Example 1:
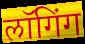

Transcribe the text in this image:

लॉगिंग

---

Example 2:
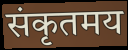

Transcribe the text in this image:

संकृतमय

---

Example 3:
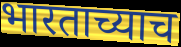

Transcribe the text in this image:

भारताच्याच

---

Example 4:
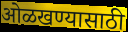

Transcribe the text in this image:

ओळखण्यासाठी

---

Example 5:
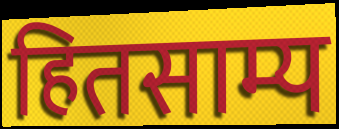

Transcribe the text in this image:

हितसाम्य